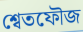
শ্বেতফৌজ